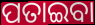
ପତାଇବା